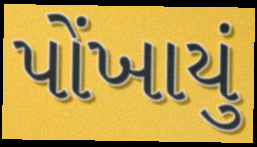
પોંખાયું